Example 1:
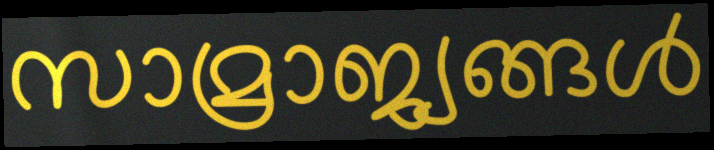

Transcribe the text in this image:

സാമ്രാജ്യങ്ങൾ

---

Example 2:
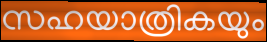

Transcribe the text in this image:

സഹയാത്രികയും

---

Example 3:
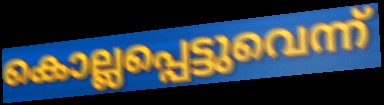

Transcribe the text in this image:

കൊല്ലപ്പെട്ടുവെന്ന്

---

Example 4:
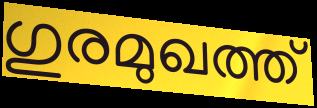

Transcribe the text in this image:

ഗുരമുഖത്ത്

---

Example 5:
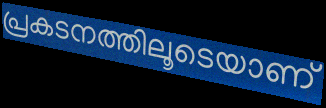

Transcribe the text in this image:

പ്രകടനത്തിലൂടെയാണ്